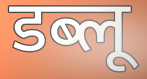
डब्लू